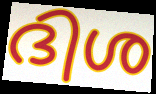
ദിശ